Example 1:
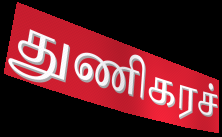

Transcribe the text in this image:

துணிகரச்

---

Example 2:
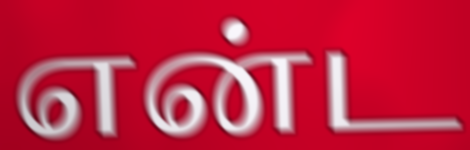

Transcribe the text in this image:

என்ட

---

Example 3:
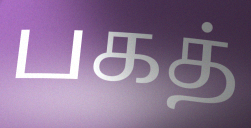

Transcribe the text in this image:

பகத்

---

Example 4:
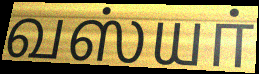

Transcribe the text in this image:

வஸ்யர்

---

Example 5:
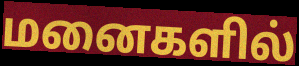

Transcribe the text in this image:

மனைகளில்